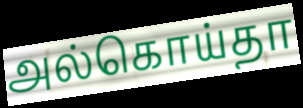
அல்கொய்தா